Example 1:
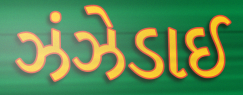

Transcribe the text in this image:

ઝંઝેડાઈ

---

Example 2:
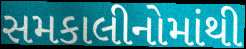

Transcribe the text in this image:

સમકાલીનોમાંથી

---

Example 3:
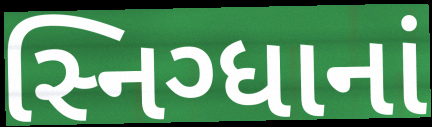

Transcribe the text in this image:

સ્નિગ્ધાનાં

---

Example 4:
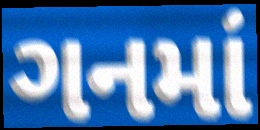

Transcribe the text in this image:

ગનમાં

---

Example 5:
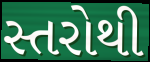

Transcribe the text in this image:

સ્તરોથી